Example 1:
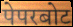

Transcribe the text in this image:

पेपरबोट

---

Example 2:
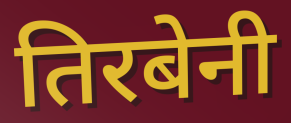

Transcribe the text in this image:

तिरबेनी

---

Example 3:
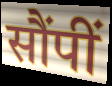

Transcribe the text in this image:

सौंपीं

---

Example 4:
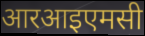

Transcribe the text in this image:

आरआइएमसी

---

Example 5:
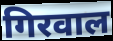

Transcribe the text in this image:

गिरवाल